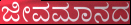
ಜೀವಮಾನದ